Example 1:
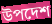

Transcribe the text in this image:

উপদেশ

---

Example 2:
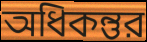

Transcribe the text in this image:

অধিকন্তুর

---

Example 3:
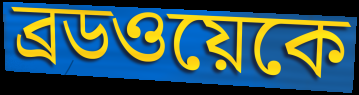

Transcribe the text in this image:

ব্রডওয়েকে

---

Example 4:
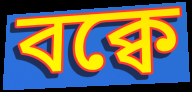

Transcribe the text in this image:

বক্বে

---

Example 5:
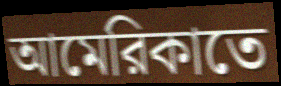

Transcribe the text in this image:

আমেরিকাতে